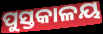
ପୁସ୍ତକାଳୟ